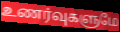
உணர்வுகளுமே